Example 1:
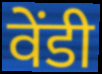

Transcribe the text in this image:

वेंडी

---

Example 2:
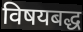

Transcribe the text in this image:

विषयबद्ध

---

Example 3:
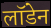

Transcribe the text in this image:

लॉडेन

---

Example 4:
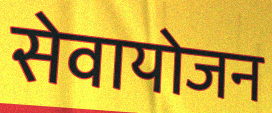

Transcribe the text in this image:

सेवायोजन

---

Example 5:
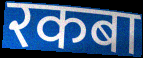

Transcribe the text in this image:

रकबा